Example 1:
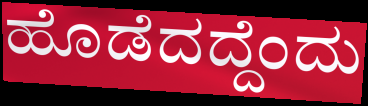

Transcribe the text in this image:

ಹೊಡೆದದ್ದೆಂದು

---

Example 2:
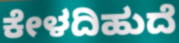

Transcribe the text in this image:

ಕೇಳದಿಹುದೆ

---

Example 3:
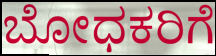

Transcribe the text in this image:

ಬೋಧಕರಿಗೆ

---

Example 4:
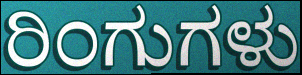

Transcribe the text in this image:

ರಿಂಗುಗಳು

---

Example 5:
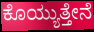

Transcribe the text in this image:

ಕೊಯ್ಯುತ್ತೇನೆ